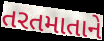
તરતમાતાને